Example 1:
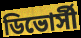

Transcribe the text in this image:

ডিভোর্সী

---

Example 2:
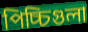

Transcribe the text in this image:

পিচ্চিগুলা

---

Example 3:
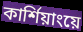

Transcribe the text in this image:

কার্শিয়াংয়ে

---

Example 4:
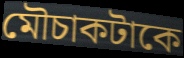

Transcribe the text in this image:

মৌচাকটাকে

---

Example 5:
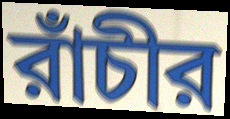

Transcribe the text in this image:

রাঁচীর